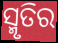
ସ୍ମୃତିର